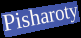
Pisharoty